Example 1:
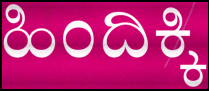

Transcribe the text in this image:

ಹಿಂದಿಕ್ಕಿ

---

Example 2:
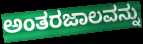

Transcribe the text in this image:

ಅಂತರಜಾಲವನ್ನು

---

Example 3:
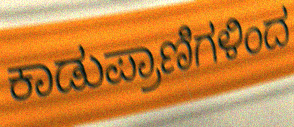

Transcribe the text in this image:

ಕಾಡುಪ್ರಾಣಿಗಳಿಂದ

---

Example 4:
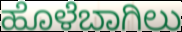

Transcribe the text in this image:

ಹೊಳೆಬಾಗಿಲು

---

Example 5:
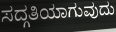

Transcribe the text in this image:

ಸದ್ಗತಿಯಾಗುವುದು